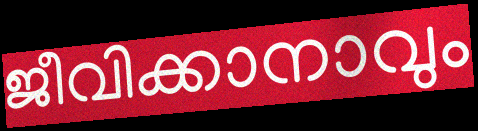
ജീവിക്കാനാവും